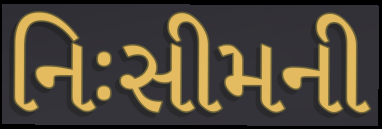
નિઃસીમની